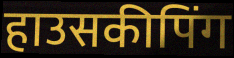
हाउसकीपिंग